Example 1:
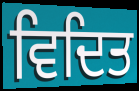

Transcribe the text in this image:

ਵਿਦਿਤ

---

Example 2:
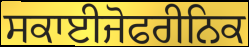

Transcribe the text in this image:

ਸਕਾਈਜੋਫਰੀਨਿਕ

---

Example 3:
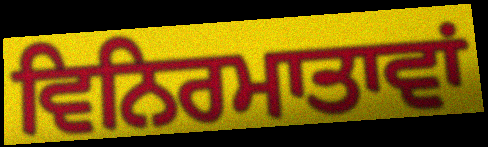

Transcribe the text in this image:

ਵਿਨਿਰਮਾਤਾਵਾਂ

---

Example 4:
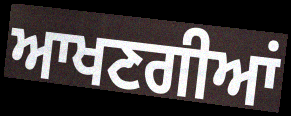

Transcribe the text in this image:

ਆਖਣਗੀਆਂ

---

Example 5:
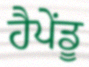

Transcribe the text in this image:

ਹੈਪੇਂਡੂ